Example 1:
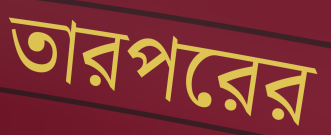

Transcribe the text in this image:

তারপরের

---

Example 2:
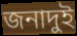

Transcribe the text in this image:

জনাদুই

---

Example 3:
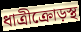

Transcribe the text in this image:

ধাত্রীক্রোড়স্থ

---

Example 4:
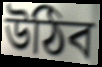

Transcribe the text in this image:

উঠিব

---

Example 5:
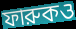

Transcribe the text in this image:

ফারুকও